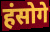
हंसोगे